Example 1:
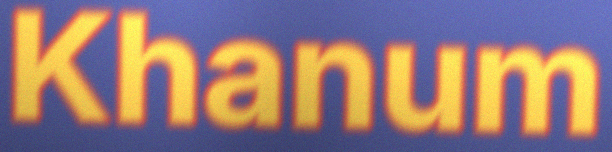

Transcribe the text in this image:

Khanum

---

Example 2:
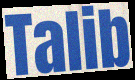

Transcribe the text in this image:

Talib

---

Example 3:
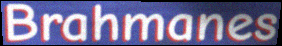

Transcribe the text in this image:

Brahmanes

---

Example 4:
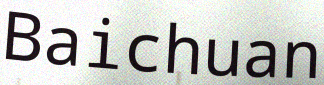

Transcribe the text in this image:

Baichuan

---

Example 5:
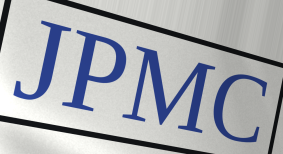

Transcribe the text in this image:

JPMC